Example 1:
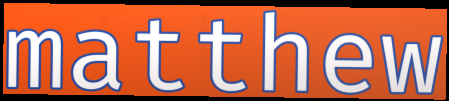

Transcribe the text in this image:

matthew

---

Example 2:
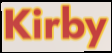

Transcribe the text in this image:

Kirby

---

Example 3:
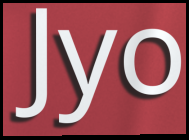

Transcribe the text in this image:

Jyo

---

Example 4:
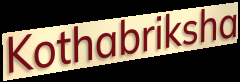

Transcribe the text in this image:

Kothabriksha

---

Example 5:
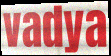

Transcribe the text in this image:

vadya